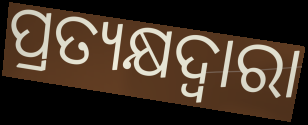
ପ୍ରତ୍ୟକ୍ଷଦ୍ବାରା